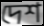
দেশ